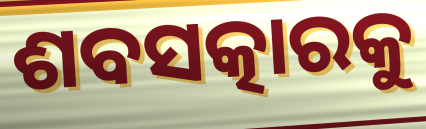
ଶବସତ୍କାରକୁ